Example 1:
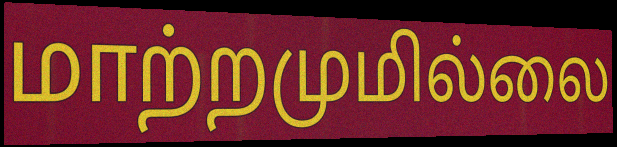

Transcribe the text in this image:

மாற்றமுமில்லை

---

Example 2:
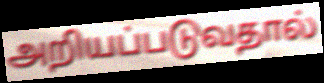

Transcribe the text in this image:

அறியப்படுவதால்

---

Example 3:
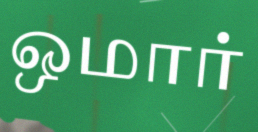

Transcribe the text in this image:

ஒமார்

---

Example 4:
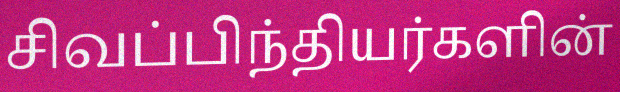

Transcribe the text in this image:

சிவப்பிந்தியர்களின்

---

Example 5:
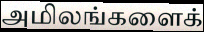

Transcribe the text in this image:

அமிலங்களைக்